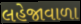
લહેજાવાળા